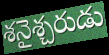
శనైశ్చరుడు